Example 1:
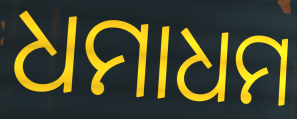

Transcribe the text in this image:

ଧମାଧମ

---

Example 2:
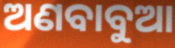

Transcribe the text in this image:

ଅଣବାବୁଆ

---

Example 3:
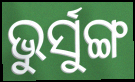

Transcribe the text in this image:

ଭୁର୍ସୁଙ୍ଗ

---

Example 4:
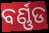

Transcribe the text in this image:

ବର୍ଣ୍ଣଡ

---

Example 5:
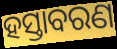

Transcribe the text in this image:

ହସ୍ତାବରଣ